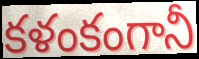
కళంకంగానీ